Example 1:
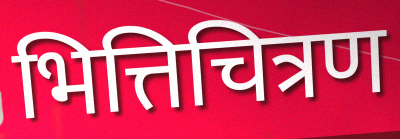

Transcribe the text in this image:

भित्तिचित्रण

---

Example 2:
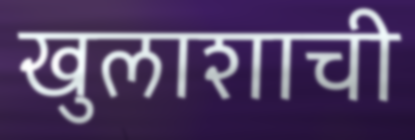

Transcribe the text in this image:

खुलाशाची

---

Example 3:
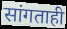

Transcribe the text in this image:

सांगताही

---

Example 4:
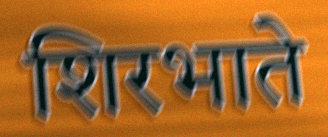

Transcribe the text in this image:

शिरभाते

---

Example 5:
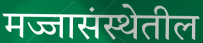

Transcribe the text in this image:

मज्जासंस्थेतील